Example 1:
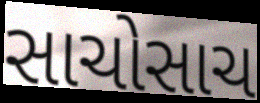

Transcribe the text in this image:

સાચોસાચ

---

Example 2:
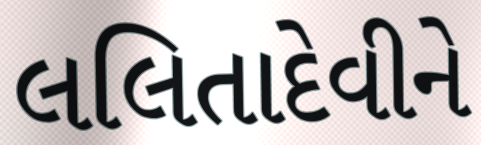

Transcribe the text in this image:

લલિતાદેવીને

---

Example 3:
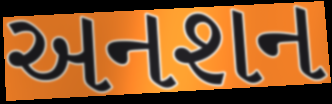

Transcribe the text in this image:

અનશન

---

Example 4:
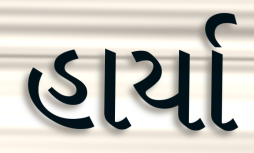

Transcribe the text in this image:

હાર્યા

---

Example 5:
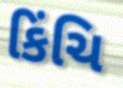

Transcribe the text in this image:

કિંચિ